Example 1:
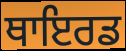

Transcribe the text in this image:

ਥਾਇਰਡ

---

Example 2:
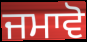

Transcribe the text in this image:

ਜਮਾਵੋ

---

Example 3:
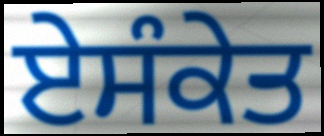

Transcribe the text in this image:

ਏਸੰਕੇਤ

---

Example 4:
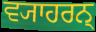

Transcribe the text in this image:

ਵ੍ਯਾਹਰਨ੍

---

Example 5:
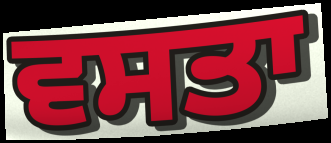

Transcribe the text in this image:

ਵਸਤਾ